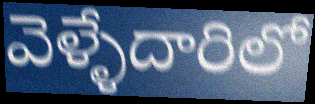
వెళ్ళేదారిలో